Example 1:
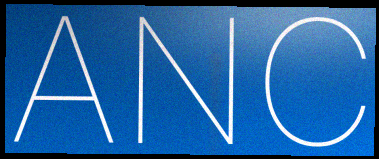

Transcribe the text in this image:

ANC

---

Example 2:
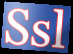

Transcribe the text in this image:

Ssl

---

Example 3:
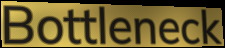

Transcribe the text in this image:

Bottleneck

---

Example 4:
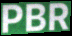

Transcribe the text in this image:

PBR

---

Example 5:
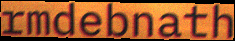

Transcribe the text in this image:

rmdebnath